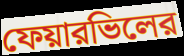
ফেয়ারভিলের